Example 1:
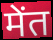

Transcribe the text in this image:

मेंत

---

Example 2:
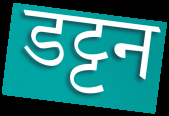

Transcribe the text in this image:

डट्टन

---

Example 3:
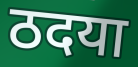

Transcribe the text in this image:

ठदया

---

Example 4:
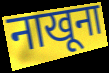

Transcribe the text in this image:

नाखूना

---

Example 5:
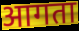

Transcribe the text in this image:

आगता